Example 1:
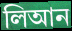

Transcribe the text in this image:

লিআন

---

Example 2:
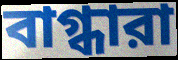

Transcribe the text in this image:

বাগ্ধারা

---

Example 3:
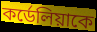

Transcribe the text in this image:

কর্ডেলিয়াকে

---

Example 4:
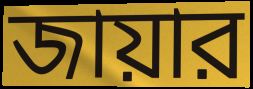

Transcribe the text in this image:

জায়ার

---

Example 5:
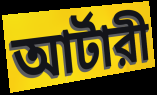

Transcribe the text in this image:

আর্টারী